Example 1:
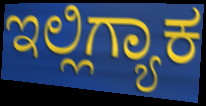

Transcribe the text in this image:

ಇಲ್ಲಿಗ್ಯಾಕ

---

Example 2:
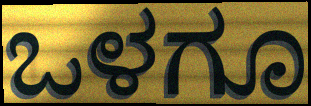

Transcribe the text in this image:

ಒಳಗೂ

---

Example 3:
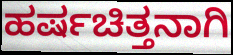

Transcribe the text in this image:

ಹರ್ಷಚಿತ್ತನಾಗಿ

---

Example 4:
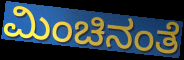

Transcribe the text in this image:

ಮಿಂಚಿನಂತೆ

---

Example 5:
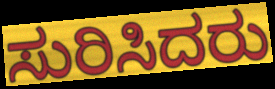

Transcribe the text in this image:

ಸುರಿಸಿದರು